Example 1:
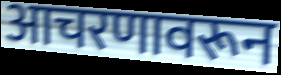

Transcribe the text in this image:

आचरणावरून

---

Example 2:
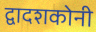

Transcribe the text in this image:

द्वादशकोनी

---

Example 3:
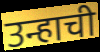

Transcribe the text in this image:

उन्हाची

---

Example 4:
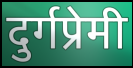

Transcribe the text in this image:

दुर्गप्रेमी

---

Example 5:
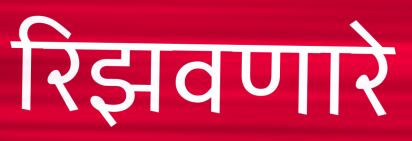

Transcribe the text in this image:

रिझवणारे